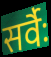
सर्वैः